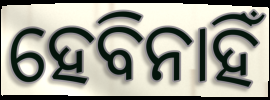
ହେବିନାହିଁ